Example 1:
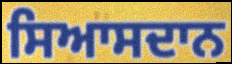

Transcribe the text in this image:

ਸਿਆਸਦਾਨ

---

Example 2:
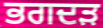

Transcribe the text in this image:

ਭਗਦੜ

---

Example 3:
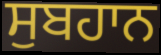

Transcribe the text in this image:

ਸੁਬਹਾਨ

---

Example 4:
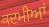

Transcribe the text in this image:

ਕਦਮੀਆਂ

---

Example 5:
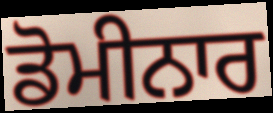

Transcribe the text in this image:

ਡੋਮੀਨਾਰ